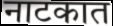
नाटकात